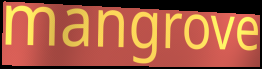
mangrove